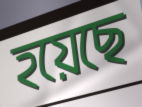
হয়েছে